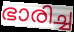
ഭാരിച്ച